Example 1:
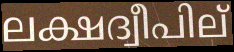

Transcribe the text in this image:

ലക്ഷദ്വീപില്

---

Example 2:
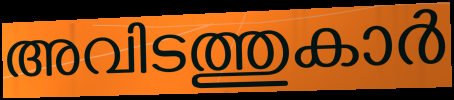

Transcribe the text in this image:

അവിടത്തുകാർ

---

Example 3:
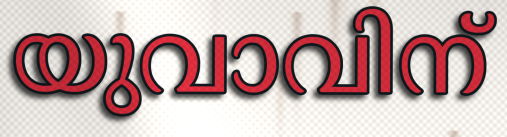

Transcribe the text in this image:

യുവാവിന്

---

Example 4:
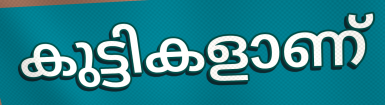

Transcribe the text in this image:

കുട്ടികളാണ്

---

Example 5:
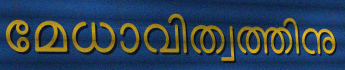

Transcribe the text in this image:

മേധാവിത്വത്തിനു